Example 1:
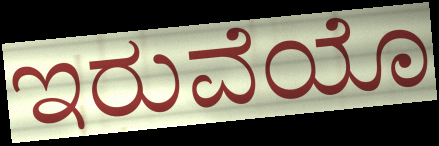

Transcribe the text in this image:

ಇರುವೆಯೊ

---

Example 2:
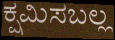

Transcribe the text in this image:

ಕ್ಷಮಿಸಬಲ್ಲ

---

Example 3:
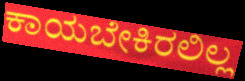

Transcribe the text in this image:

ಕಾಯಬೇಕಿರಲಿಲ್ಲ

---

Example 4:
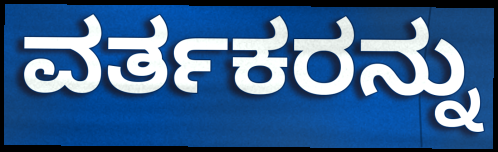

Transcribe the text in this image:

ವರ್ತಕರನ್ನು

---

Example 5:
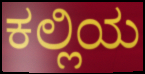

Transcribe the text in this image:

ಕಲ್ಲಿಯ